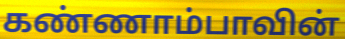
கண்ணாம்பாவின்